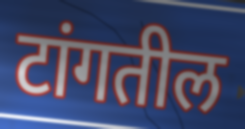
टांगतील